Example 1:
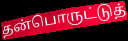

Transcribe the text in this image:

தன்பொருட்டுத்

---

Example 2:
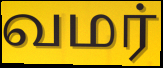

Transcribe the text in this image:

வமர்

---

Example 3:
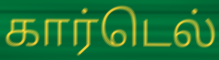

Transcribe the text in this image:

கார்டெல்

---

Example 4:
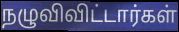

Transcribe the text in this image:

நழுவிவிட்டார்கள்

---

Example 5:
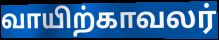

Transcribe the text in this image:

வாயிற்காவலர்